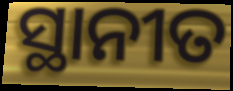
ସ୍ଥାନୀତ